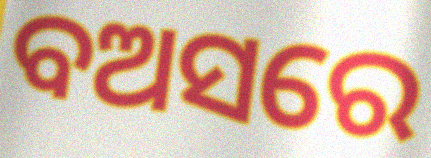
ବଅସରେ